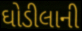
ઘોડીલાની